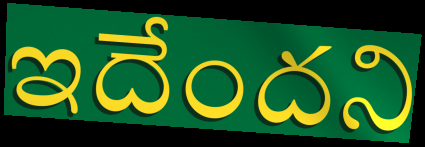
ఇదేందని